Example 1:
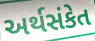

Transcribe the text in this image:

અર્થસંકેત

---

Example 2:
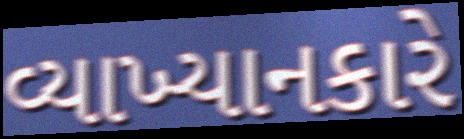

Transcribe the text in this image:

વ્યાખ્યાનકારે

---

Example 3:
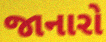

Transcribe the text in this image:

જાનારો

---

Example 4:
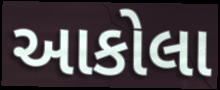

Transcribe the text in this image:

આકોલા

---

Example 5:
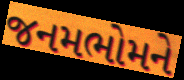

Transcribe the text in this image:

જનમભોમને